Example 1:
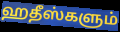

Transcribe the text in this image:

ஹதீஸ்களும்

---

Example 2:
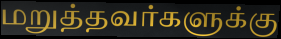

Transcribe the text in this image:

மறுத்தவர்களுக்கு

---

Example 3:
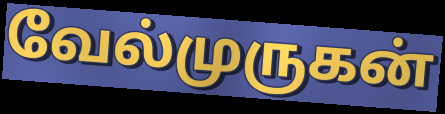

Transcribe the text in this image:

வேல்முருகன்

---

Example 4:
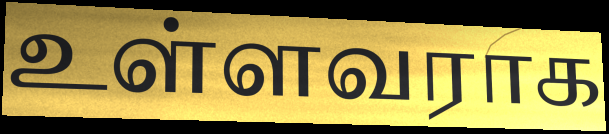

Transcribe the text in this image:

உள்ளவராக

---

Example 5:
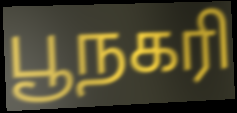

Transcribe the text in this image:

பூநகரி